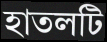
হাতলটি